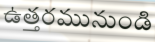
ఉత్తరమునుండి